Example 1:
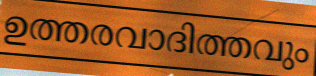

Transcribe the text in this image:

ഉത്തരവാദിത്തവും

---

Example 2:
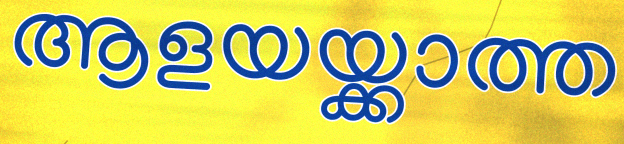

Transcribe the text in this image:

ആളയയ്ക്കാത്ത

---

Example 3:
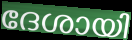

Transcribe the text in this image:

ദേശായി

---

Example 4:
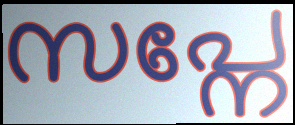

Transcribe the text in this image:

സപ്നേ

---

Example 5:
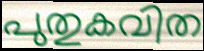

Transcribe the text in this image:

പുതുകവിത